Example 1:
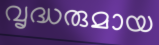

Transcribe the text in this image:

വൃദ്ധരുമായ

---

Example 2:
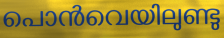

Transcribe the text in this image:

പൊൻവെയിലുണ്ടു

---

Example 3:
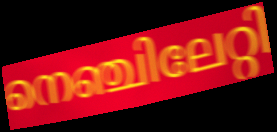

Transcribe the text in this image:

നെഞ്ചിലേറ്റി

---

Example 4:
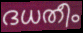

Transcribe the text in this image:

ദധതീം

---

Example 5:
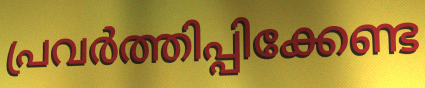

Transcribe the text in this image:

പ്രവർത്തിപ്പിക്കേണ്ട